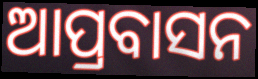
ଆପ୍ରବାସନ